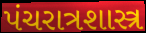
પંચરાત્રશાસ્ત્ર